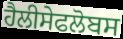
ਹੈਲੀਸੇਫਲੋਬਸ